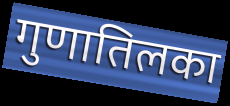
गुणातिलका